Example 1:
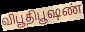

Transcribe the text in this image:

விபூதிபூஷண்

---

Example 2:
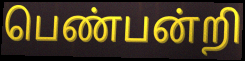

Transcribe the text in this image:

பெண்பன்றி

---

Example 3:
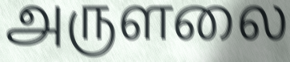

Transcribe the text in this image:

அருளலை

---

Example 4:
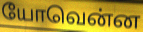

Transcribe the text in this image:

யோவென்ன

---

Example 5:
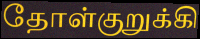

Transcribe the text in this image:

தோள்குறுக்கி